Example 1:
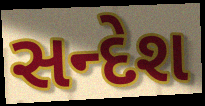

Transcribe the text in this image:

સન્દેશ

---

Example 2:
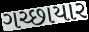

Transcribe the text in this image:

ગચ્છાયાર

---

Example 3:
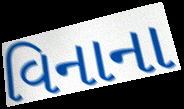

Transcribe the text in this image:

વિનાના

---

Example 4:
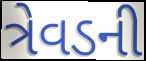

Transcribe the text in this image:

ત્રેવડની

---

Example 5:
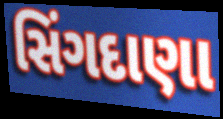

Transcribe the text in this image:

સિંગદાણા